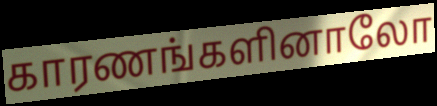
காரணங்களினாலோ